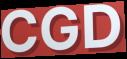
CGD